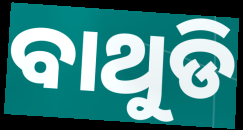
ବାଥୁଡି